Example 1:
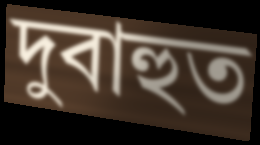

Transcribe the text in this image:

দুবাহুত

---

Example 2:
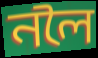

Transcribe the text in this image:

নলৈ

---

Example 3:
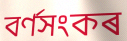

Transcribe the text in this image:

বৰ্ণসংকৰ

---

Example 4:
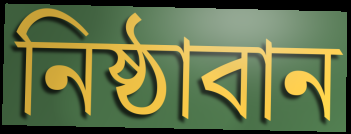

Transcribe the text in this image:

নিষ্ঠাবান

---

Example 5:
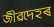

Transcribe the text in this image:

জীৱদেহৰ